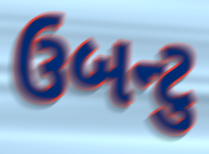
ઉબન્ટુ